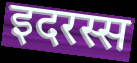
इदरस्स